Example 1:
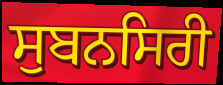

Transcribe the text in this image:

ਸੁਬਨਸਿਰੀ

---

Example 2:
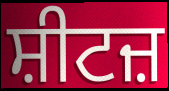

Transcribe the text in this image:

ਸ਼ੀਟਜ਼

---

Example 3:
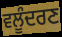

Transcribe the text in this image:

ਵਲੂੰਦਰਣ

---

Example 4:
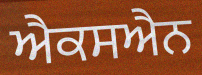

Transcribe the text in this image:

ਐਕਸਐਨ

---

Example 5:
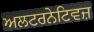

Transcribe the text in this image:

ਅਲਟਰਨੇਟਿਵਜ਼